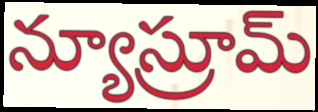
న్యూస్రూమ్